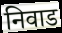
निवाड